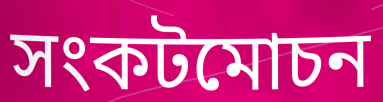
সংকটমোচন